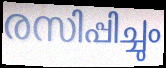
രസിപ്പിച്ചും